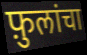
फ़ुलांचा